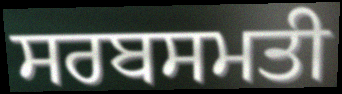
ਸਰਬਸਮਤੀ